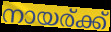
നായര്ക്ക്